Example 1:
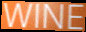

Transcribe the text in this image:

WINE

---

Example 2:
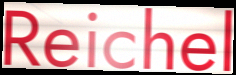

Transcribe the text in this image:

Reichel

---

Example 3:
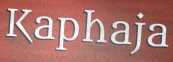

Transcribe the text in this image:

Kaphaja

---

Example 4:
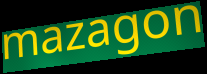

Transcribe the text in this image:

mazagon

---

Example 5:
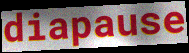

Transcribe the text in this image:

diapause